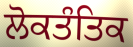
ਲੋਕਤੰਤਿਕ